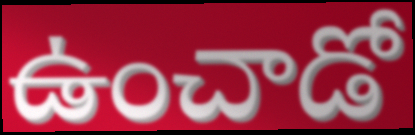
ఉంచాడో